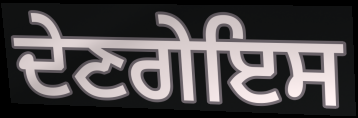
ਦੇਣਗੇਇਸ